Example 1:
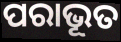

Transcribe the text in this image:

ପରାଭୂତ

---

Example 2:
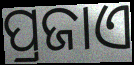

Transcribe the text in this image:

ପ୍ରଜାଏ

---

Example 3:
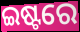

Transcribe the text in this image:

ଇଷ୍ଟରେ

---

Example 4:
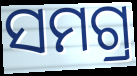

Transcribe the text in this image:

ସମଗ୍ର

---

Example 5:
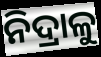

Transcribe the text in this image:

ନିଦ୍ରାଳୁ